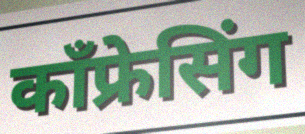
कॉंफ्रेसिंग